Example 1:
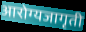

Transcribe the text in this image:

आरोग्यजागृती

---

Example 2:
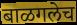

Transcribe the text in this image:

बाळगलेच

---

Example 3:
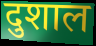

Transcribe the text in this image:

दुशाल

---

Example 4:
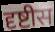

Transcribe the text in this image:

दृष्टीस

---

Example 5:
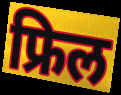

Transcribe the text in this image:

फ्रिल